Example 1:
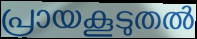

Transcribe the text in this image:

പ്രായകൂടുതൽ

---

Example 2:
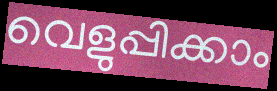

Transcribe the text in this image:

വെളുപ്പിക്കാം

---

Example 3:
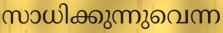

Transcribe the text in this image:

സാധിക്കുന്നുവെന്ന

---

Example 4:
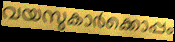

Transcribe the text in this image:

വയസുകാർക്കൊപ്പം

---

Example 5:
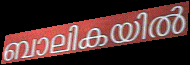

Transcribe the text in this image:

ബാലികയിൽ